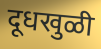
दूधखुळी